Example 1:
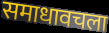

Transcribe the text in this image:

समाधावचला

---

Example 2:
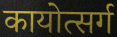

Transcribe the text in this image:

कायोत्सर्ग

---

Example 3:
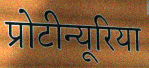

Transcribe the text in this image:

प्रोटीन्यूरिया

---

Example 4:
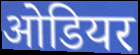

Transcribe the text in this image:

ओडियर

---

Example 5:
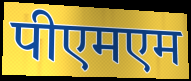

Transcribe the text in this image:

पीएमएम